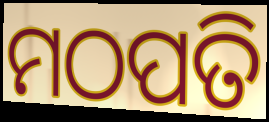
ମଠପତି